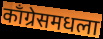
काँग्रेसमधला